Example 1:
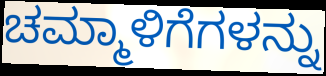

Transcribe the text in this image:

ಚಮ್ಮಾಳಿಗೆಗಳನ್ನು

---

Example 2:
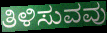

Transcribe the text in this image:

ತಿಳಿಸುವವು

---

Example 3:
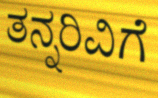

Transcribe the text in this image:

ತನ್ನರಿವಿಗೆ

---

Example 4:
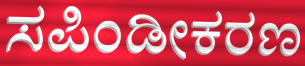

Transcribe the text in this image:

ಸಪಿಂಡೀಕರಣ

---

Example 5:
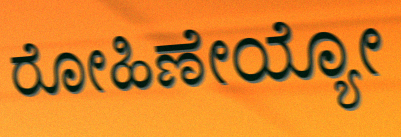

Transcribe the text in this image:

ರೋಹಿಣೇಯ್ಯೋ